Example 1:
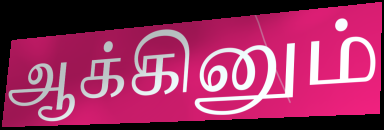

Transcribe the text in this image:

ஆக்கினும்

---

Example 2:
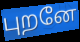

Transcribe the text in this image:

புறனே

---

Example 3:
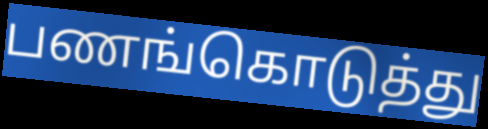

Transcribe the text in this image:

பணங்கொடுத்து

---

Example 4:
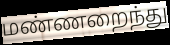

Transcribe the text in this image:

மண்ணறைந்து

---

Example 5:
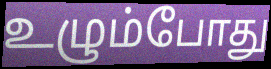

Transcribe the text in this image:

உழும்போது